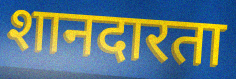
शानदारता